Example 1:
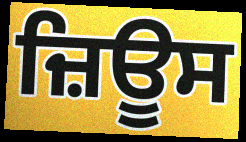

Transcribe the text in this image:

ਜ਼ਿਊਸ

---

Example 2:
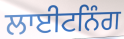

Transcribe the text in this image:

ਲਾਈਟਨਿੰਗ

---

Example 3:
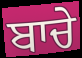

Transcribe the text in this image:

ਬਾਚੇ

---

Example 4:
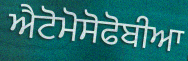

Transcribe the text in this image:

ਐਟੋਮੋਸੋਫੋਬੀਆ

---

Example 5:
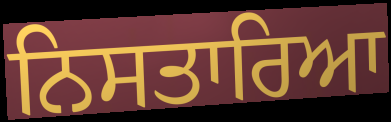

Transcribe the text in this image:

ਨਿਸਤਾਰਿਆ